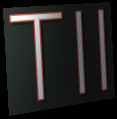
TII